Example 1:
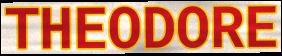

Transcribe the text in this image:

THEODORE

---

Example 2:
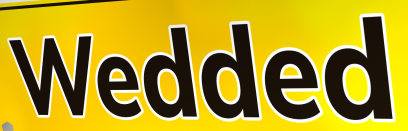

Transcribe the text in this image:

Wedded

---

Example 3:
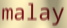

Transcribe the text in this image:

malay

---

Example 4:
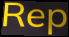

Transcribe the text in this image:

Rep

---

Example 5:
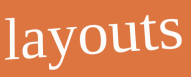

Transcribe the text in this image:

layouts